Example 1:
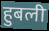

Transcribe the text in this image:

हुबली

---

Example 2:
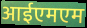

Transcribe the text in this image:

आईएमएम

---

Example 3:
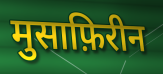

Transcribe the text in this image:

मुसाफ़िरीन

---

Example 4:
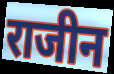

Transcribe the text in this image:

राजीन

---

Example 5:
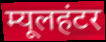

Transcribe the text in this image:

म्यूलहंटर